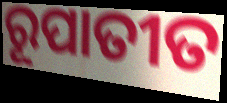
ରୂପାତୀତ